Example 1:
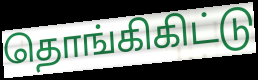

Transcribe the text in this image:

தொங்கிகிட்டு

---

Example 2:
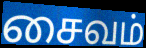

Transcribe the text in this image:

சைவம்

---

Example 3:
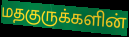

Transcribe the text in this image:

மதகுருக்களின்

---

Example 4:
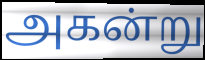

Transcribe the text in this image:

அகன்று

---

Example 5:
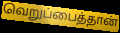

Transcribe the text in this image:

வெறுப்பைத்தான்